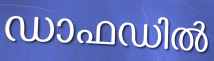
ഡാഫഡിൽ